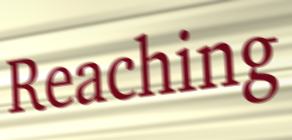
Reaching